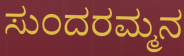
ಸುಂದರಮ್ಮನ